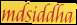
mdsiddha